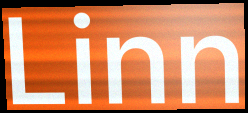
Linn